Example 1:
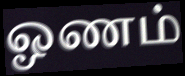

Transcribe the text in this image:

ஓணம்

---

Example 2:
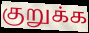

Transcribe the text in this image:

குறுக்க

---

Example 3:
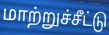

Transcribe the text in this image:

மாற்றுச்சீட்டு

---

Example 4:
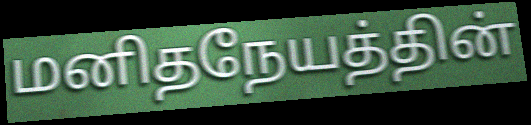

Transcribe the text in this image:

மனிதநேயத்தின்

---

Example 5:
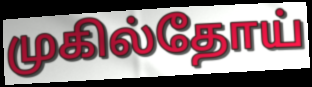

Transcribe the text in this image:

முகில்தோய்